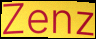
Zenz